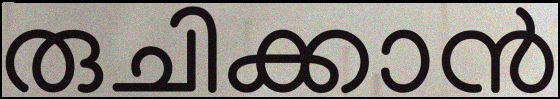
രുചിക്കാൻ